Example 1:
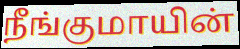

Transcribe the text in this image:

நீங்குமாயின்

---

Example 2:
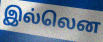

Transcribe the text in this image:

இல்லென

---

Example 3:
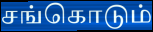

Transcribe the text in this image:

சங்கொடும்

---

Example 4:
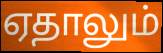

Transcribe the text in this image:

ஏதாலும்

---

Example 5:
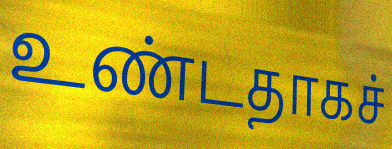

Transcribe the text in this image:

உண்டதாகச்